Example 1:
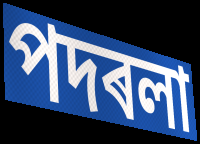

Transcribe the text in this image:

পদৰলা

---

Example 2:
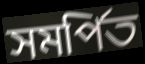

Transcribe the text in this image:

সমৰ্পিত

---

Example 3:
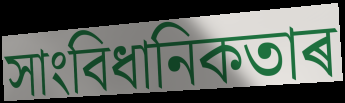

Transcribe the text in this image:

সাংবিধানিকতাৰ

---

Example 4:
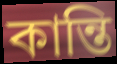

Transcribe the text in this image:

কান্তি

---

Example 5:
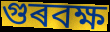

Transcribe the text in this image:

গুৰবক্ষ